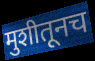
मुशीतूनच